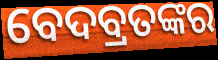
ବେଦବ୍ରତଙ୍କର